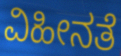
ವಿಹೀನತೆ